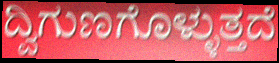
ದ್ವಿಗುಣಗೊಳ್ಳುತ್ತದೆ